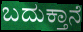
ಬದುಕ್ತಾನೆ